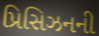
પ્રિસિઝનની